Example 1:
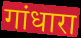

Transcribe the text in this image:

गांधारा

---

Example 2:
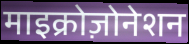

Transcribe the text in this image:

माइक्रोज़ोनेशन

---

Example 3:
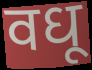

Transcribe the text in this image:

वधू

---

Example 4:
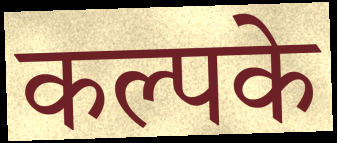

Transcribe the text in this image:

कल्पके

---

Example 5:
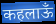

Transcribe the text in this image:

कहलाऊँ